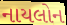
નાયલોન